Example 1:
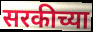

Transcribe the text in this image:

सरकीच्या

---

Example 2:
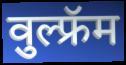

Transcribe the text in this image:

वुल्फ्रॅम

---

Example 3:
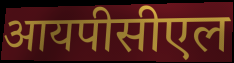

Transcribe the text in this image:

आयपीसीएल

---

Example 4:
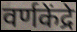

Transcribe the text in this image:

वर्णकेंद्रे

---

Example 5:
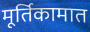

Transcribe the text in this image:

मूर्तिकामात